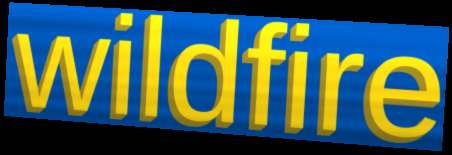
wildfire